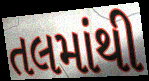
તલમાંથી